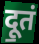
दू॒तं